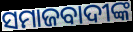
ସମାଜବାଦୀଙ୍କ